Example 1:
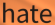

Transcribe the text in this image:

hate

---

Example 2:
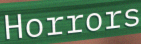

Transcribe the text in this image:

Horrors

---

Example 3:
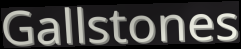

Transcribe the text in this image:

Gallstones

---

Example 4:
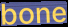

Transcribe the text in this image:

bone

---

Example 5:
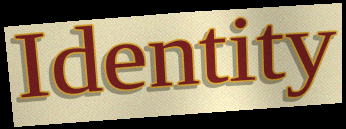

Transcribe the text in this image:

Identity